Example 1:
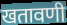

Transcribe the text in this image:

खतावणी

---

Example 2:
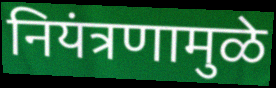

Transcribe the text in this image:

नियंत्रणामुळे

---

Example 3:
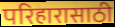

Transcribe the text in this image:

परिहारासाठी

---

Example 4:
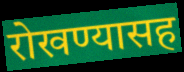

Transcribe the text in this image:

रोखण्यासह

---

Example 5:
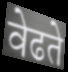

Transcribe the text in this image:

वेढते